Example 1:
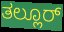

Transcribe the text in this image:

ತಲ್ಲೂರ್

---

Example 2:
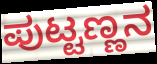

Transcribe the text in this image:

ಪುಟ್ಟಣ್ಣನ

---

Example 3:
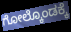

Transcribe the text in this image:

ಗೋಲ್ಕೊಂಡಕ್ಕೆ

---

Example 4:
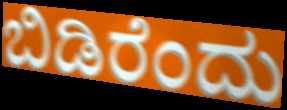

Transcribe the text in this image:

ಬಿಡಿರೆಂದು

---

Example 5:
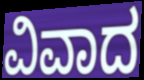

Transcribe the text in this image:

ವಿವಾದ